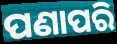
ପଣାପରି